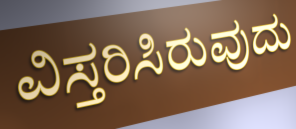
ವಿಸ್ತರಿಸಿರುವುದು